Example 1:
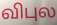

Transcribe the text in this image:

விபுல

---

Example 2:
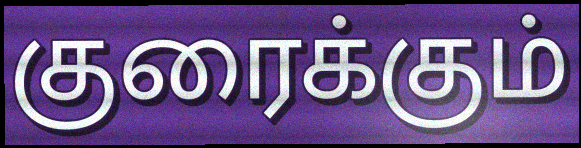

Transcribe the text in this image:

குரைக்கும்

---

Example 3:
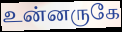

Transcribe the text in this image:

உன்னருகே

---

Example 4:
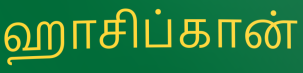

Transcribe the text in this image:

ஹாசிப்கான்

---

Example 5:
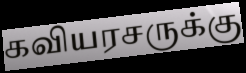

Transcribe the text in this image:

கவியரசருக்கு